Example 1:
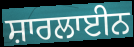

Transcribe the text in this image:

ਸ਼ਾਰਲਾਈਨ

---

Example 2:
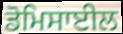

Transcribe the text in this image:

ਡੋਮਿਸਾਈਲ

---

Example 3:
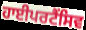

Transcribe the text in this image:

ਹਾਈਪਰਟੈਂਸਿਵ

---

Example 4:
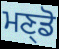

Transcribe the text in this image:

ਮਣ੍ਡੋ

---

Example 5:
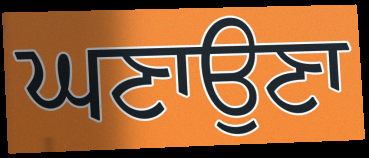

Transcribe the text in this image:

ਘਣਾਉਣਾ